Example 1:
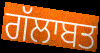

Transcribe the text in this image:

ਗੱਲਾਬਤ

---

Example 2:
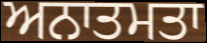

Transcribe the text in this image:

ਅਨਾਤਮਤਾ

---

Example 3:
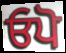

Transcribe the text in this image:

ਓਪੋ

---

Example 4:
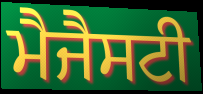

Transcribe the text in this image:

ਮੈਜੈਸਟੀ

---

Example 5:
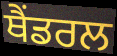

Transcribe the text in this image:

ਥੈਂਡਰਲ